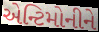
એન્ટિમોનીને